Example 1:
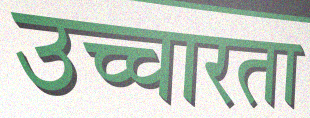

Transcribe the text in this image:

उच्चारता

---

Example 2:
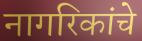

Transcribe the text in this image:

नागरिकांचे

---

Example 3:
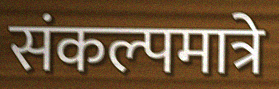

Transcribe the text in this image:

संकल्पमात्रे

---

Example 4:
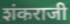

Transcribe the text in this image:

शंकराजी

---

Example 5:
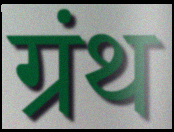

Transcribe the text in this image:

ग्रंथ